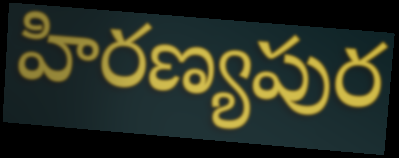
హిరణ్యపుర